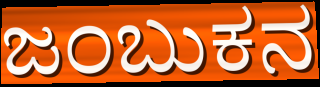
ಜಂಬುಕನ